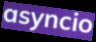
asyncio